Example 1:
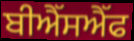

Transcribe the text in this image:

ਬੀਐੱਸਐੱਫ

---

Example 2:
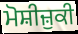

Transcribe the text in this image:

ਮੋਸ਼ੀਜ਼ੁਕੀ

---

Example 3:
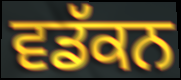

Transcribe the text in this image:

ਵਡੱਕਨ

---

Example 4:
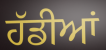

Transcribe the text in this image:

ਹੱਡੀਆਂ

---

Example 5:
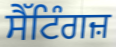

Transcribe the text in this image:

ਸੈੱਟਿੰਗਜ਼